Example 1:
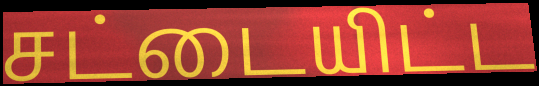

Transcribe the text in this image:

சட்டையிட்ட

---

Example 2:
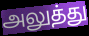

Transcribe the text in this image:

அலுத்து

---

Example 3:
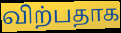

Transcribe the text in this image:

விற்பதாக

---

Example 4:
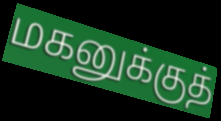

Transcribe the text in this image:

மகனுக்குத்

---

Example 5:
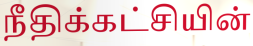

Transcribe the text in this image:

நீதிக்கட்சியின்